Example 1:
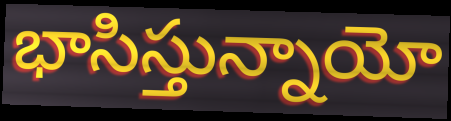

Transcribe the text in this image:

భాసిస్తున్నాయో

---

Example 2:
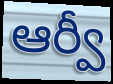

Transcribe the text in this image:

ఆర్వీ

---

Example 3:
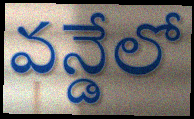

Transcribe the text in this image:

వన్డేలో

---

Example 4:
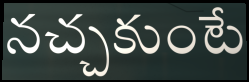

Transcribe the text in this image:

నచ్చకుంటే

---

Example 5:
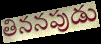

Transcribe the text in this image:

తిననపుడు